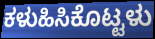
ಕಳುಹಿಸಿಕೊಟ್ಟಳು